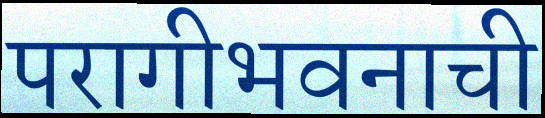
परागीभवनाची